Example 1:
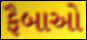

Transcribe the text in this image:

ફૈબાઓ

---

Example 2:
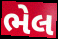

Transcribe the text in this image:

ભેલ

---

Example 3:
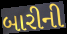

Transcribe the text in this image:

બારીની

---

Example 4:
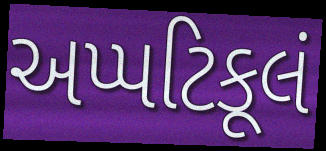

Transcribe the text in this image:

અપ્પટિકૂલં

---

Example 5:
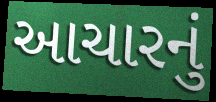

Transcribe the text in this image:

આચારનું